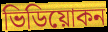
ভিডিয়োকন